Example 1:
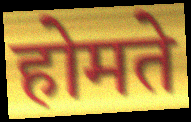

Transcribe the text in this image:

होमते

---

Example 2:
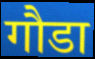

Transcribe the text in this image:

गौडा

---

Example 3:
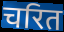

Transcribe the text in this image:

चरित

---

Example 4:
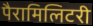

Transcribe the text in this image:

पैरामिलिटरी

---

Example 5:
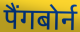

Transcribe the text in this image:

पैंगबोर्न